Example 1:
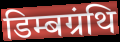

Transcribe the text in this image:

डिम्बग्रंथि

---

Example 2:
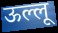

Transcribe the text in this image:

ऊल्लू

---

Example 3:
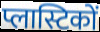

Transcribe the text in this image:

प्लास्टिकों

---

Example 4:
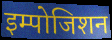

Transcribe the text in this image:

इम्पोजिशन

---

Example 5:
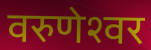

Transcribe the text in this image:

वरुणेश्वर